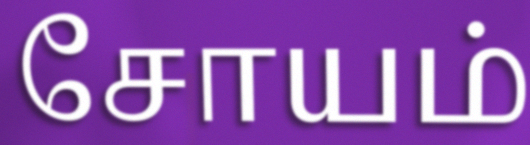
சோயம்